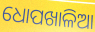
ଧୋପଖାଳିଆ